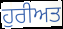
ਹੁਰੀਅਤ